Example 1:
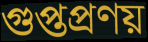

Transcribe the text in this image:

গুপ্তপ্রণয়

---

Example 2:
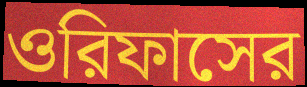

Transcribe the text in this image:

ওরিফাসের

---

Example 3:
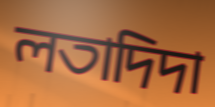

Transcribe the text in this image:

লতাদিদা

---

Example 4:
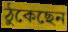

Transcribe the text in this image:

ঠুকেছেন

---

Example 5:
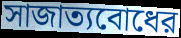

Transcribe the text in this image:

সাজাত্যবোধের